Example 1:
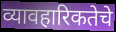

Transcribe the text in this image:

व्यावहारिकतेचे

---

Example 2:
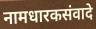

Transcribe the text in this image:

नामधारकसंवादे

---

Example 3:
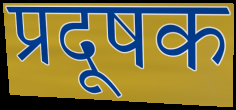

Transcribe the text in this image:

प्रदूषक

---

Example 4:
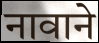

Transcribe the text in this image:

नावाने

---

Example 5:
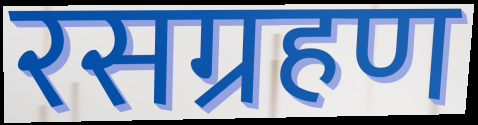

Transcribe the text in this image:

रसग्रहण